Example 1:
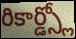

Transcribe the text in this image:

రికార్డ్స్లో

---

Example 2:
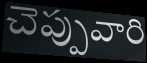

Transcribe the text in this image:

చెప్పువారి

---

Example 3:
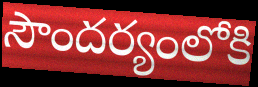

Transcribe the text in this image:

సౌందర్యంలోకి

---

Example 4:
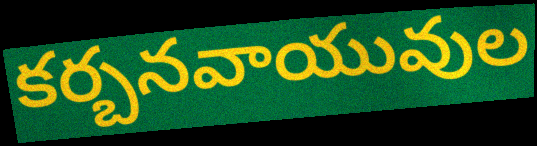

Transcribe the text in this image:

కర్బనవాయువుల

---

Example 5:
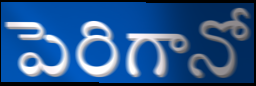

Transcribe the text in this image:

పెరిగానో